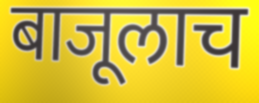
बाजूलाच